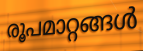
രൂപമാറ്റങ്ങൾ